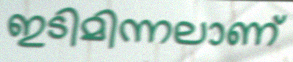
ഇടിമിന്നലാണ്